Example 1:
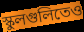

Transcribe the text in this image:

স্কুলগুলিতেও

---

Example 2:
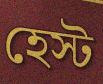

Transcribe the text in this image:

হেস্ট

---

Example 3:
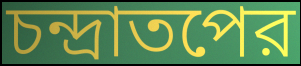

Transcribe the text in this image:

চন্দ্রাতপের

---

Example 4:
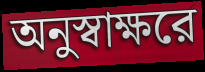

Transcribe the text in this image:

অনুস্বাক্ষরে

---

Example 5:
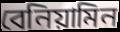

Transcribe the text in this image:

বেনিয়ামিন